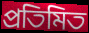
প্রতিমিত